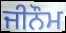
ਜੀਨੌਮ